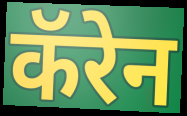
कॅरेन